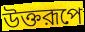
উক্তরূপে